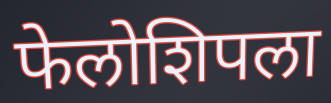
फेलोशिपला